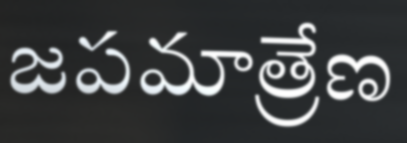
జపమాత్రేణ